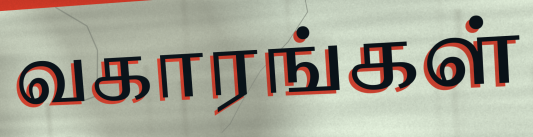
வகாரங்கள்